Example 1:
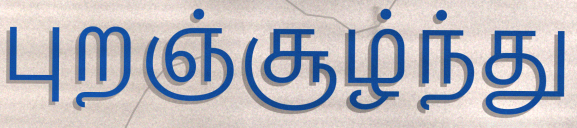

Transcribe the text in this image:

புறஞ்சூழ்ந்து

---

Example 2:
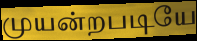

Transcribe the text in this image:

முயன்றபடியே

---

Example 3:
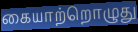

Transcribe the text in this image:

கையாற்றொழுது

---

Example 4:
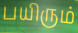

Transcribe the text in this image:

பயிரும்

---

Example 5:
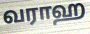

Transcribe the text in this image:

வராஹ